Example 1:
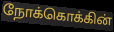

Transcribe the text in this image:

நோக்கொக்கின்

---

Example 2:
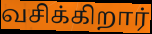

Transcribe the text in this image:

வசிக்கிறார்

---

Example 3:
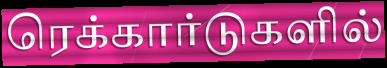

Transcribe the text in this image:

ரெக்கார்டுகளில்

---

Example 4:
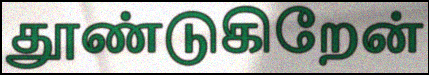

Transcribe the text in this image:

தூண்டுகிறேன்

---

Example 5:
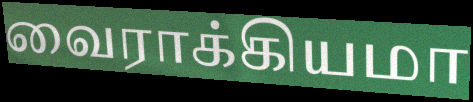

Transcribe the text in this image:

வைராக்கியமா